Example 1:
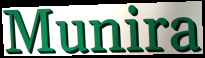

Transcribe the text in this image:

Munira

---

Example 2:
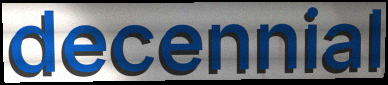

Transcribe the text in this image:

decennial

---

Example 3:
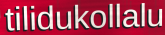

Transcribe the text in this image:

tilidukollalu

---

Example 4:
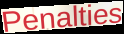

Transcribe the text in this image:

Penalties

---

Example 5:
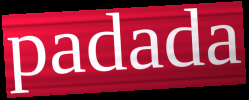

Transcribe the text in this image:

padada